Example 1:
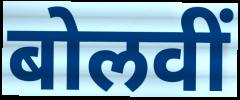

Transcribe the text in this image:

बोलवीं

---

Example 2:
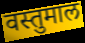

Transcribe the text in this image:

वस्तुमाल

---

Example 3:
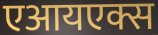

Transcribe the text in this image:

एआयएक्स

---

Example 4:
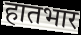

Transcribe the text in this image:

हातभार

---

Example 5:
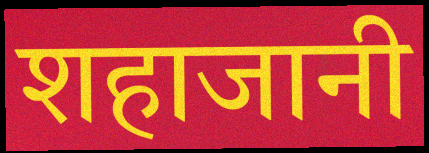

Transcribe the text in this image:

शहाजानी